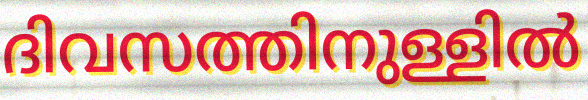
ദിവസത്തിനുള്ളിൽ